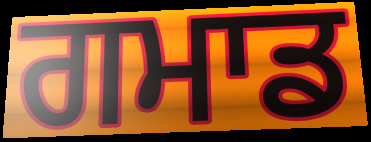
ਗਮਾਡ